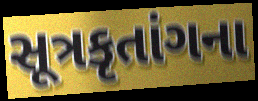
સૂત્રકૃતાંગના